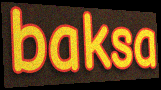
baksa